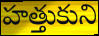
హత్తుకుని